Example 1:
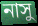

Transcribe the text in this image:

নাসু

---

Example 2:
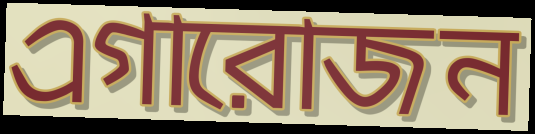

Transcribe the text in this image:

এগারোজন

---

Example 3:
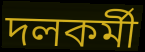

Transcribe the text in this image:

দলকর্মী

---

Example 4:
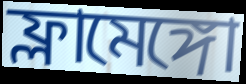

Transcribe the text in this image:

ফ্লামেঙ্গো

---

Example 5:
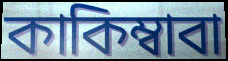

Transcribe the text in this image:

কাকিম্বাবা